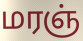
மரஞ்